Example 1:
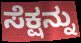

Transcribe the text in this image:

ಸೆಕ್ಷನ್ನು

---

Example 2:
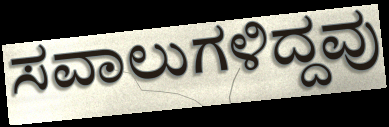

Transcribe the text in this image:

ಸವಾಲುಗಳಿದ್ದವು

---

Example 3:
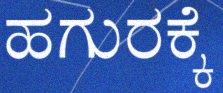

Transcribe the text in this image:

ಹಗುರಕ್ಕೆ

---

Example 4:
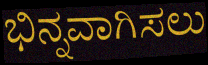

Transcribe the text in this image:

ಭಿನ್ನವಾಗಿಸಲು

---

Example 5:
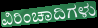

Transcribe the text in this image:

ವಿರಿಂಚಾದಿಗಳು